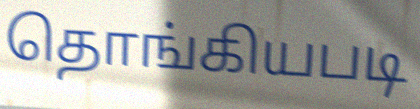
தொங்கியபடி